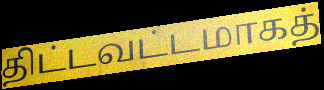
திட்டவட்டமாகத்